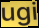
ugi